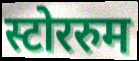
स्टोररुम